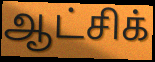
ஆட்சிக்